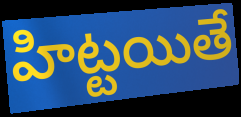
హిట్టయితే